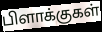
பிளாக்குகள்